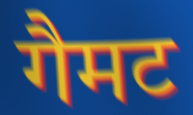
गैमट